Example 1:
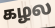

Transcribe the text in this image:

கழல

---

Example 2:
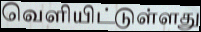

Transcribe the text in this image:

வெளியிட்டுள்ளது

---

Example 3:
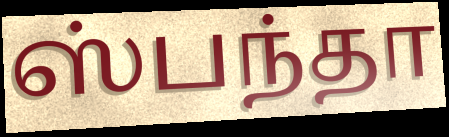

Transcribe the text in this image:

ஸ்பந்தா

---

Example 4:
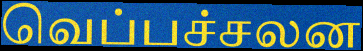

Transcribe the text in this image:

வெப்பச்சலன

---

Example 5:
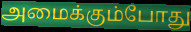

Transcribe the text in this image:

அமைக்கும்போது